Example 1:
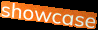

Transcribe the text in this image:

showcase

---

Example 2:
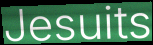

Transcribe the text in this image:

Jesuits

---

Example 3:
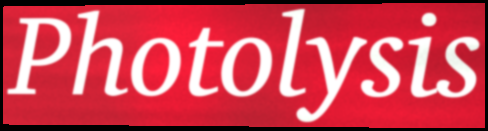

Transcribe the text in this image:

Photolysis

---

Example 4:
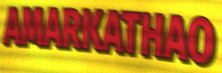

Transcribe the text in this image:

AMARKATHAO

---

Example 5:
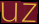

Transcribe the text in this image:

uz